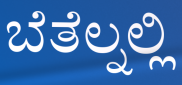
ಬೆತೆಲ್ನಲ್ಲಿ